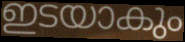
ഇടയാകും